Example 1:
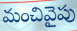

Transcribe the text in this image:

మంచివైపు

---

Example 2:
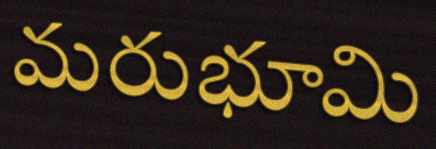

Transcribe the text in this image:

మరుభూమి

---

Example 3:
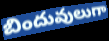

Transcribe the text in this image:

బిందువులుగా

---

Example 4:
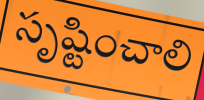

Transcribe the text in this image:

సృష్టించాలి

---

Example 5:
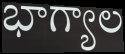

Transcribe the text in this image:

భాగ్యాల